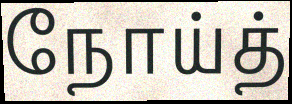
நோய்த்